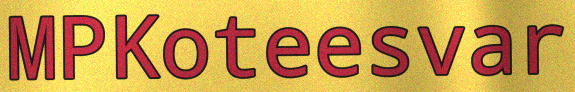
MPKoteesvar